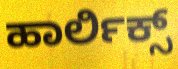
ಹಾರ್ಲಿಕ್ಸ್